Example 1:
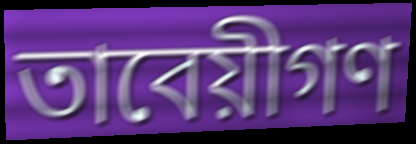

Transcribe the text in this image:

তাবেয়ীগণ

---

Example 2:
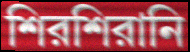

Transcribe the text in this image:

শিরশিরানি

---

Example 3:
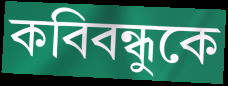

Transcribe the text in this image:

কবিবন্ধুকে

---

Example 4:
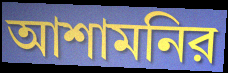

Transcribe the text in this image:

আশামনির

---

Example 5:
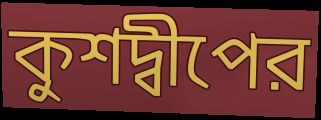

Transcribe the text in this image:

কুশদ্বীপের